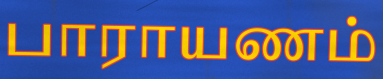
பாராயணம்